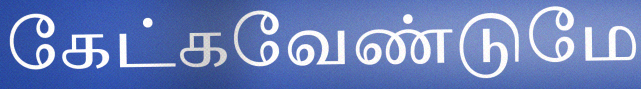
கேட்கவேண்டுமே